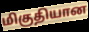
மிகுதியான